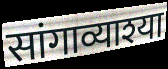
सांगाव्याश्या